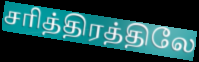
சரித்திரத்திலே